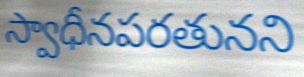
స్వాధీనపరతునని